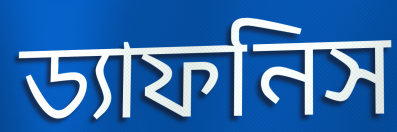
ড্যাফনিস